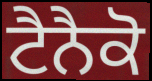
ਟੈਨੈਕੋ